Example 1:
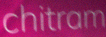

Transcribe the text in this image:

chitram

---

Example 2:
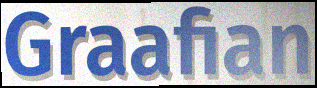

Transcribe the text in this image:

Graafian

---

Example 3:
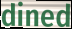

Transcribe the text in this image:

dined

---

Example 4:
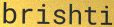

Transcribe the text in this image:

brishti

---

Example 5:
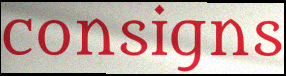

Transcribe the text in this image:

consigns